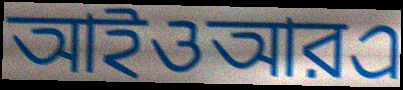
আইওআরএ